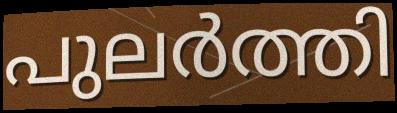
പുലർത്തി